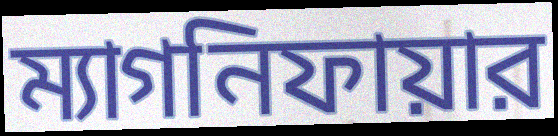
ম্যাগনিফায়ার